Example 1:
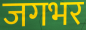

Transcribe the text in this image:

जगभर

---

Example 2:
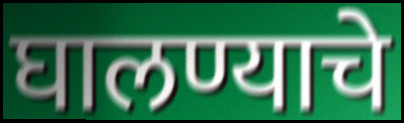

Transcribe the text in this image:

घालण्याचे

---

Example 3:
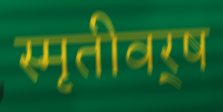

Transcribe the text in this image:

स्मृतीवर्ष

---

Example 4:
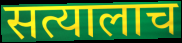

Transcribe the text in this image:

सत्यालाच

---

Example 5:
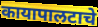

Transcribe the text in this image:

कायापालटाचे